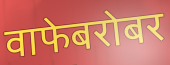
वाफेबरोबर